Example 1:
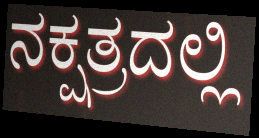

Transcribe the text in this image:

ನಕ್ಷತ್ರದಲ್ಲಿ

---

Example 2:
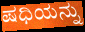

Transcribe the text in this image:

ಷಧಿಯನ್ನು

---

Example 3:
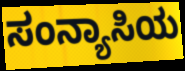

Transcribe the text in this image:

ಸಂನ್ಯಾಸಿಯ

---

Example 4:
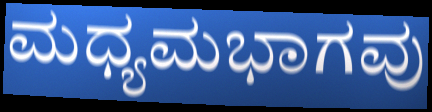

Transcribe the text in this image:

ಮಧ್ಯಮಭಾಗವು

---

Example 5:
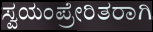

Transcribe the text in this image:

ಸ್ವಯಂಪ್ರೇರಿತರಾಗಿ